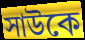
সাউকে